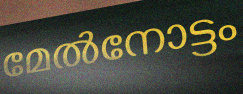
മേൽനോട്ടം